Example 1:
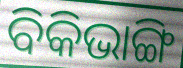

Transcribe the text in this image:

ବିକିଭାଙ୍ଗି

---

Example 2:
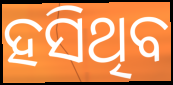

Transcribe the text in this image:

ହସିଥିବ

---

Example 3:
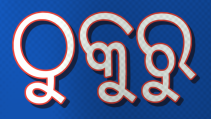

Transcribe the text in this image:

ଠୁକୁରୁ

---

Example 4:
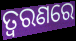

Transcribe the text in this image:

ତ୍ଵରଣରେ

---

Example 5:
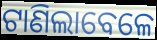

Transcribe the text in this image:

ଟାଣିଲାବେଳେ